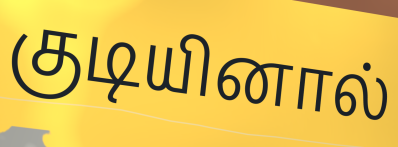
குடியினால்